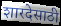
शारदेसाठी